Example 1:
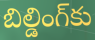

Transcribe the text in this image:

బిల్డింగ్‌కు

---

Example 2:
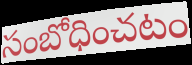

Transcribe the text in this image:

సంబోధించటం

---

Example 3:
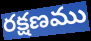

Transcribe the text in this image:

రక్షణము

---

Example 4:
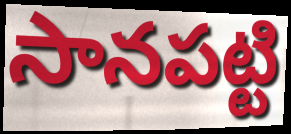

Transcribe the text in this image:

సానపట్టి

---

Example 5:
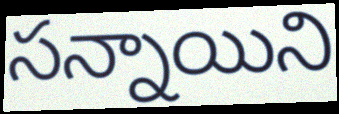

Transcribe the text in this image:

సన్నాయిని